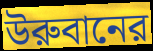
উরুবানের